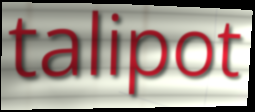
talipot